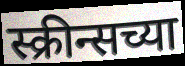
स्क्रीन्सच्या